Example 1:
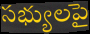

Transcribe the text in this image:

సభ్యులపై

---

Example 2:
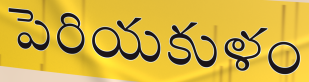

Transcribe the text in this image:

పెరియకుళం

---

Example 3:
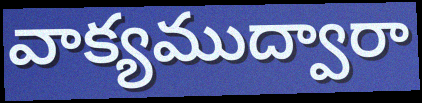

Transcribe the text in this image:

వాక్యముద్వారా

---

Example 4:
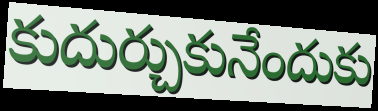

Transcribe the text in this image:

కుదుర్చుకునేందుకు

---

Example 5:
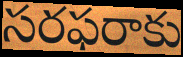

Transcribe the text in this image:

సరఫరాకు